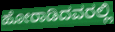
ಹೋರಾಡಿದವರಲ್ಲಿ